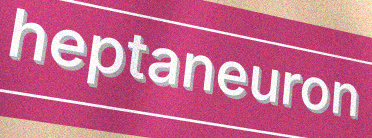
heptaneuron